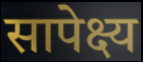
सापेक्ष्य